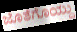
ಜೊತೆಗೊಯ್ದು